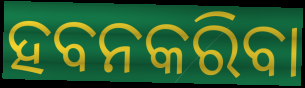
ହବନକରିବା